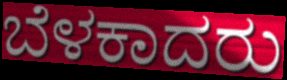
ಬೆಳಕಾದರು